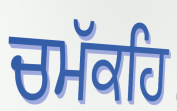
ਚਮੱਕਹਿ